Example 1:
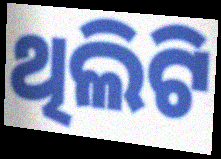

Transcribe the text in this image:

ଥିଲିଟି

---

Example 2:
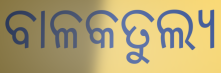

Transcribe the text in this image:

ବାଳକତୁଲ୍ୟ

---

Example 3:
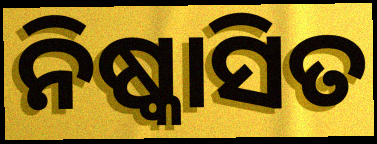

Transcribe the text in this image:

ନିଷ୍କାସିତ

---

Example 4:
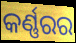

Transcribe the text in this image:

କର୍ଣ୍ଣରର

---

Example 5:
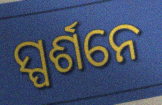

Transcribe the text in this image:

ସ୍ପର୍ଶନେ